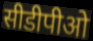
सीडीपीओ